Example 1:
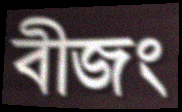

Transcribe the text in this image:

বীজং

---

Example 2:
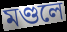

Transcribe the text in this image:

মণ্ডলে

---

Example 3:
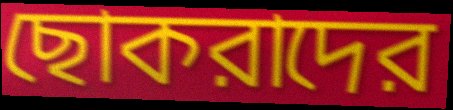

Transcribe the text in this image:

ছোকরাদের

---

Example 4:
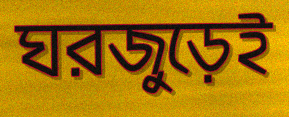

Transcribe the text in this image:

ঘরজুড়েই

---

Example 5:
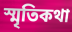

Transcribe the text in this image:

স্মৃতিকথা